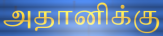
அதானிக்கு